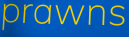
prawns